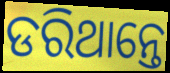
ଡରିଥାନ୍ତେ